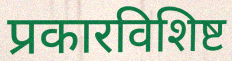
प्रकारविशिष्ट